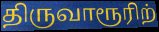
திருவாரூரிற்